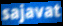
sajavat